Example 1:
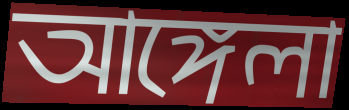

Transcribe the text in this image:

আঙ্গেলা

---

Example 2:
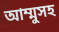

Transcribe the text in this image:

আম্মুসহ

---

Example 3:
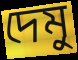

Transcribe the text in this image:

দেমু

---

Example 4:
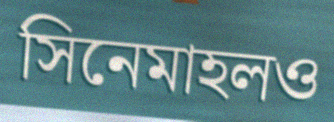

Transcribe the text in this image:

সিনেমাহলও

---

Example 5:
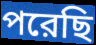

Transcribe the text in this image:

পরেছি